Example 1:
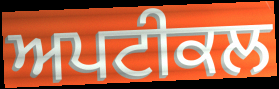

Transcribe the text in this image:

ਅਪਟੀਕਲ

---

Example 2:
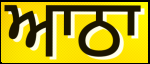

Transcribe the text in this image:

ਆਠਾ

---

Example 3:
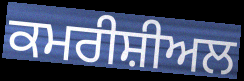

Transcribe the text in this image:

ਕਮਰੀਸ਼ੀਅਲ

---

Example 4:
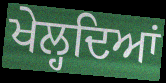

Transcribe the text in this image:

ਖੇਲ੍ਹਦਿਆਂ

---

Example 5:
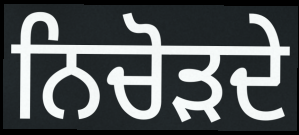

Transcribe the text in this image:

ਨਿਚੋੜਦੇ